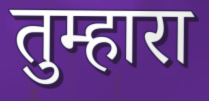
तुम्हारा